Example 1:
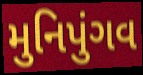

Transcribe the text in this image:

મુનિપુંગવ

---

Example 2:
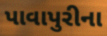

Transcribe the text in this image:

પાવાપુરીના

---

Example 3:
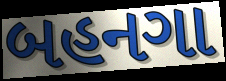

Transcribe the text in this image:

બહનગા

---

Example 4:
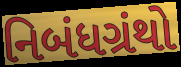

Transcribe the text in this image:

નિબંધગ્રંથો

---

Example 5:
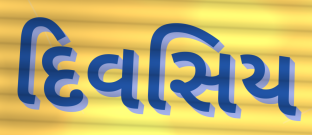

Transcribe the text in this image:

દિવસિય